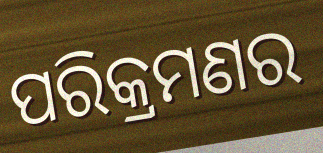
ପରିକ୍ରମଣର